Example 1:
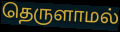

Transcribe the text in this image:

தெருளாமல்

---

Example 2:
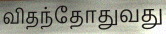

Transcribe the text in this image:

விதந்தோதுவது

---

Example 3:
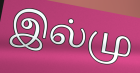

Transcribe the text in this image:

இல்மு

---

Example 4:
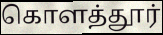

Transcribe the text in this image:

கொளத்தூர்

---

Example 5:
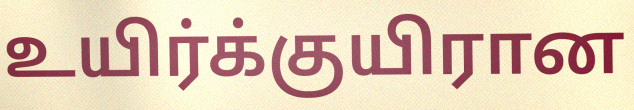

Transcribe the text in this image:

உயிர்க்குயிரான